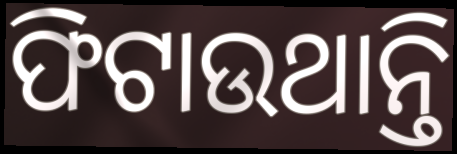
ଫିଟାଉଥାନ୍ତି